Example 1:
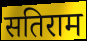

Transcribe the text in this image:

सतिराम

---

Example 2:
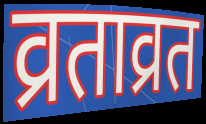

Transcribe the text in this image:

व्रताव्रत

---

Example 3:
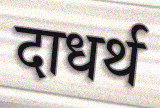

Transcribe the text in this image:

दाधर्थ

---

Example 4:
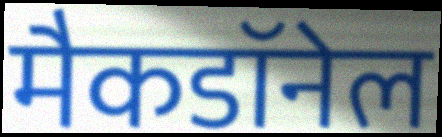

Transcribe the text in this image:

मैकडॉनेल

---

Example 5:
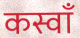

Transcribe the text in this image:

कस्वाँ